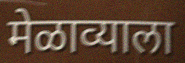
मेळाव्याला